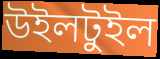
উইলটুইল